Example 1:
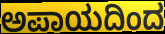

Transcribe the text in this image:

ಅಪಾಯದಿಂದ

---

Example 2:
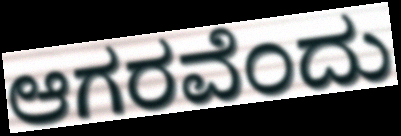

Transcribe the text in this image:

ಆಗರವೆಂದು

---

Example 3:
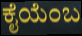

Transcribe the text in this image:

ಕೈಯೆಂಬ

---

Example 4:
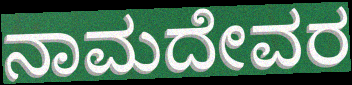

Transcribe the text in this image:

ನಾಮದೇವರ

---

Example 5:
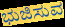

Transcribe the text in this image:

ಭುಜಿಸುವ